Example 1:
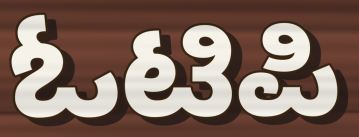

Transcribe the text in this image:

ಓಟಿಪಿ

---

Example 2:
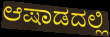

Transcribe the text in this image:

ಆಷಾಡದಲ್ಲಿ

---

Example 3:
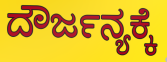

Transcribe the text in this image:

ದೌರ್ಜನ್ಯಕ್ಕೆ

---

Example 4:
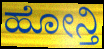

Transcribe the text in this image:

ಹೋನ್ತಿ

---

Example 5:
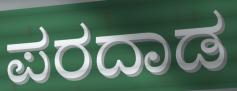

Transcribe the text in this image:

ಪರದಾಡ